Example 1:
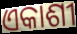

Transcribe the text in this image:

ଏକାଶୀ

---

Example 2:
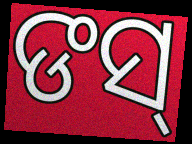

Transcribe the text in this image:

ଙସ୍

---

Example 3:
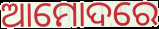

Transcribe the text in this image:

ଆମୋଦରେ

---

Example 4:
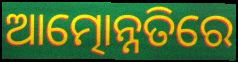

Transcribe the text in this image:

ଆତ୍ମୋନ୍ନତିରେ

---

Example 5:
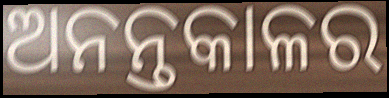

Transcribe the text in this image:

ଅନନ୍ତକାଳର